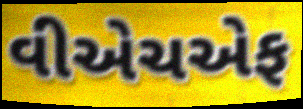
વીએચએફ